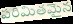
పరిమితమైన